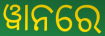
ୱାନରେ